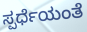
ಸ್ಪರ್ಧೆಯಂತೆ